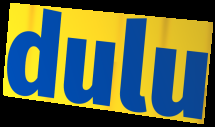
dulu